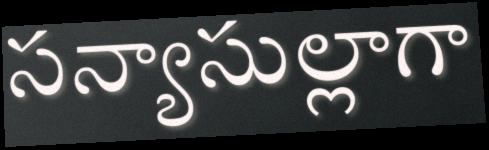
సన్యాసుల్లాగా